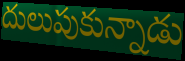
దులుపుకున్నాడు